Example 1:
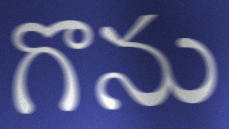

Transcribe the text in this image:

గొను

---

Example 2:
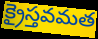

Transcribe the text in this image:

క్రైస్తవమత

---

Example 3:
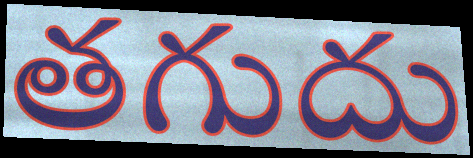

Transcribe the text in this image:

తగుదు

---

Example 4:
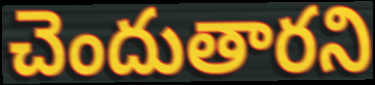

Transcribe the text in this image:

చెందుతారని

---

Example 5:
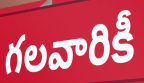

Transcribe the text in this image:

గలవారికీ